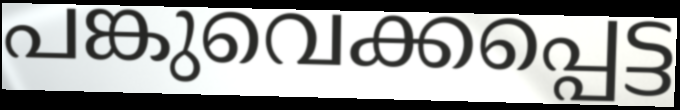
പങ്കുവെക്കപ്പെട്ട